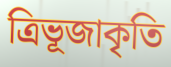
ত্রিভূজাকৃতি